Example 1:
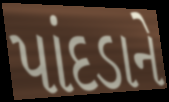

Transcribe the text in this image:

પાંદડાને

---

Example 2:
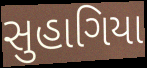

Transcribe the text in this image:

સુહાગિયા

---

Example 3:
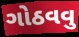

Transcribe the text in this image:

ગોઠવવુ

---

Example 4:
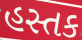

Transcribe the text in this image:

હસ્તક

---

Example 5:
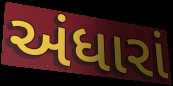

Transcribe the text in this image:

અંધારાં